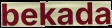
bekada